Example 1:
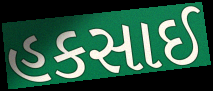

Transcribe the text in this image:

હકસાઈ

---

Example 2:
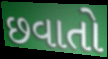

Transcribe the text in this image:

છવાતો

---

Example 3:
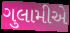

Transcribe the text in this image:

ગુલામીએ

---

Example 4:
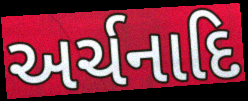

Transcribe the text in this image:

અર્ચનાદિ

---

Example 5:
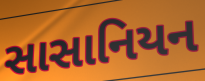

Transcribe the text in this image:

સાસાનિયન